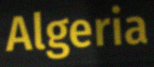
Algeria